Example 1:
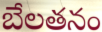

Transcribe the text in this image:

బేలతనం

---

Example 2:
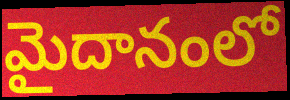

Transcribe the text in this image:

మైదానంలో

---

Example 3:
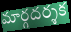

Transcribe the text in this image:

మార్గదర్శక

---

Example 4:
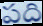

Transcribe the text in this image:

పది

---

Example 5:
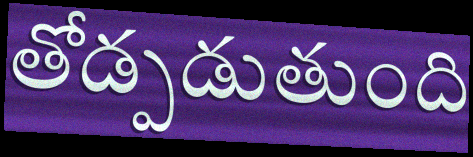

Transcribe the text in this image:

తోడ్పడుతుంది